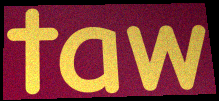
taw